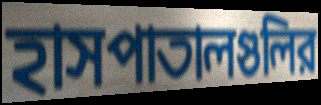
হাসপাতালগুলির